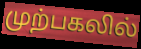
முற்பகலில்